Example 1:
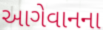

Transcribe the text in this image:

આગેવાનના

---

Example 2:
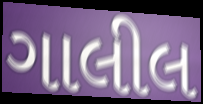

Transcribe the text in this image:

ગાલીલ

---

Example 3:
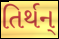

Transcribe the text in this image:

તિર્થન્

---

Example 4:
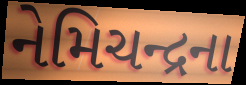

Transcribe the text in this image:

નેમિચન્દ્રના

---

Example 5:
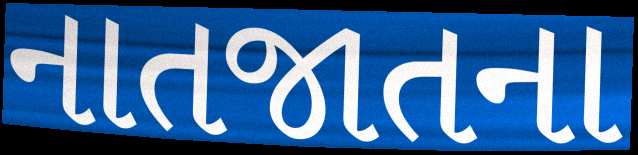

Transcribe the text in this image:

નાતજાતના